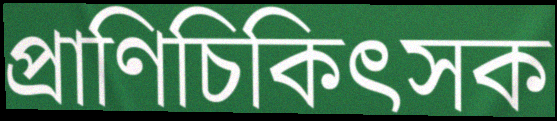
প্রাণিচিকিৎসক